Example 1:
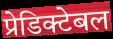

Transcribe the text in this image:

प्रेडिक्टेबल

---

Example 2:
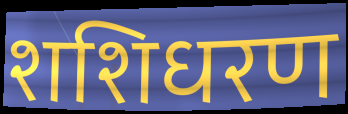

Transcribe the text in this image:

शशिधरण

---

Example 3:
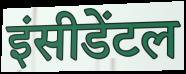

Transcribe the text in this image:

इंसीडेंटल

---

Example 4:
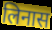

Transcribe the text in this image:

लिनास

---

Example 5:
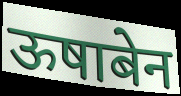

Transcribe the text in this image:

ऊषाबेन